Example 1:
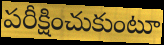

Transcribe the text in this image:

పరీక్షించుకుంటూ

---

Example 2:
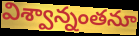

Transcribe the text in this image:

విశ్వాన్నంతనూ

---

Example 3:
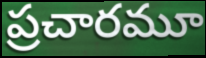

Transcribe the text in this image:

ప్రచారమూ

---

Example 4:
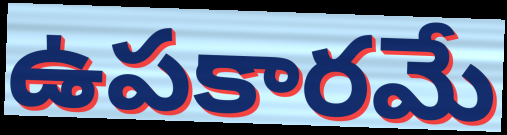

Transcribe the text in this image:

ఉపకారమే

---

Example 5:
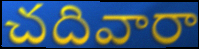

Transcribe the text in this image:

చదివారా